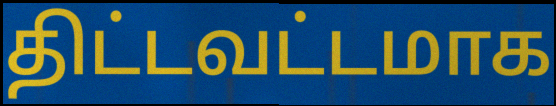
திட்டவட்டமாக